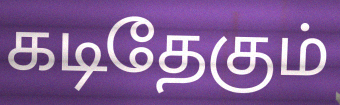
கடிதேகும்